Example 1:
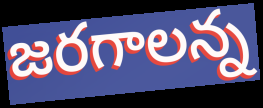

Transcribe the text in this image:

జరగాలన్న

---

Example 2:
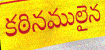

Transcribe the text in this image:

కఠినములైన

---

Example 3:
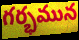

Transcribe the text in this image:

గర్భమున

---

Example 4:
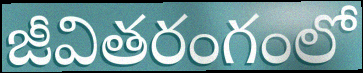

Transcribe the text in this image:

జీవితరంగంలో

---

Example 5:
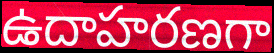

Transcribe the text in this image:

ఉదాహరణగా